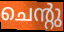
ചെന്റു